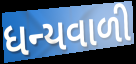
ધન્યવાળી